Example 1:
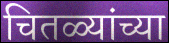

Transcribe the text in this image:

चितळ्यांच्या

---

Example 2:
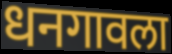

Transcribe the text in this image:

धनगावला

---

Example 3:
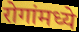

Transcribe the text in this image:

रोगांमध्ये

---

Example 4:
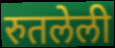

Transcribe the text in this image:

रुतलेली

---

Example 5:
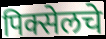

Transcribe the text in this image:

पिक्सेलचे